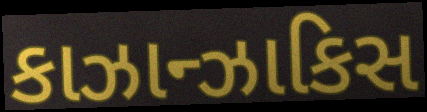
કાઝાન્ઝાકિસ